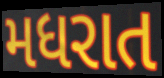
મધરાત